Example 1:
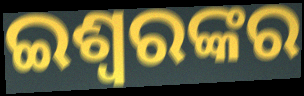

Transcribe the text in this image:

ଇଶ୍ୱରଙ୍କର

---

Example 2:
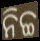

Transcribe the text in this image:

ନିଚ୍ଚ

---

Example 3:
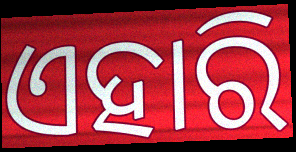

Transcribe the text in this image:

ଏହାରି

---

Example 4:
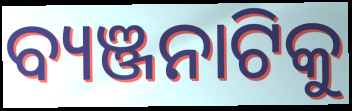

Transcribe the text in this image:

ବ୍ୟଞ୍ଜନାଟିକୁ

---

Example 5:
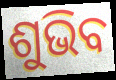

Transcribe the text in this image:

ଶୁଭିବ